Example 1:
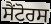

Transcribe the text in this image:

ਸੈਂਟੋਰਸ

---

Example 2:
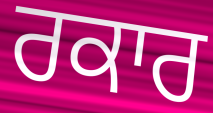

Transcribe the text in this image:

ਰਕਾਰ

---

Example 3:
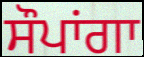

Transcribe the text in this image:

ਸੌਪਾਂਗਾ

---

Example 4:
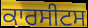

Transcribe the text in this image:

ਕਾਰਸੀਟਸ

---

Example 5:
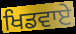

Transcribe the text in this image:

ਖਿਡਵਾਏ